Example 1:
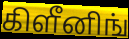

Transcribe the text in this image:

கிளீனிங்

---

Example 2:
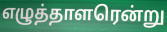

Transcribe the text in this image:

எழுத்தாளரென்று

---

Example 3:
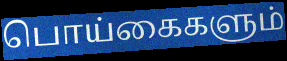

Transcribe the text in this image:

பொய்கைகளும்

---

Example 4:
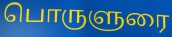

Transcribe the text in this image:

பொருளுரை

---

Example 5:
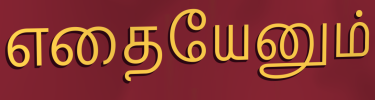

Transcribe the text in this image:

எதையேனும்